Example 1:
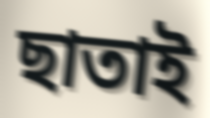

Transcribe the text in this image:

ছাতাই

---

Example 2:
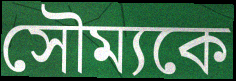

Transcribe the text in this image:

সৌম্যকে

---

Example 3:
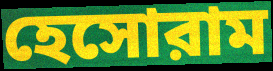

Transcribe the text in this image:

হেসোরাম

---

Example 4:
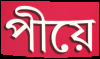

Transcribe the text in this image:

পীয়ে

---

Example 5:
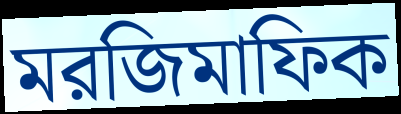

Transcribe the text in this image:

মরজিমাফিক